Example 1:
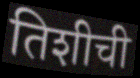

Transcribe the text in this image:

तिशीची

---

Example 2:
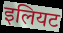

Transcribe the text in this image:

इलियट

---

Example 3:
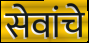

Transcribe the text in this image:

सेवांचे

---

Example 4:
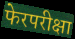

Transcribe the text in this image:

फेरपरीक्षा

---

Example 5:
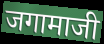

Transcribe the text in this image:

जगामाजी